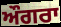
ਔਗਰਾ